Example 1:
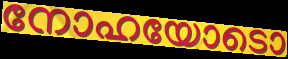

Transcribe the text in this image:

നോഹയോടൊ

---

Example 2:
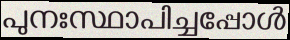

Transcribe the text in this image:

പുനഃസ്ഥാപിച്ചപ്പോൾ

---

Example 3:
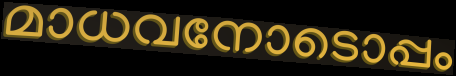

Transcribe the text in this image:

മാധവനോടൊപ്പം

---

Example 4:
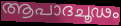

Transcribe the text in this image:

ആപാദചൂഢം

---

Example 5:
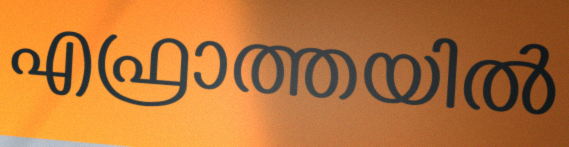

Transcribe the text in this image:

എഫ്രാത്തയിൽ